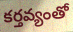
కర్తవ్యంతో